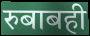
रुबाबही